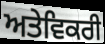
ਅਤੇਵਿਕਰੀ